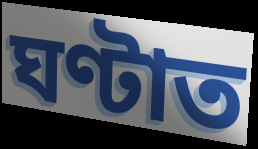
ঘণ্টাত